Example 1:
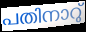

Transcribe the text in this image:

പതിനാറു്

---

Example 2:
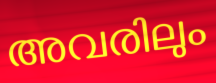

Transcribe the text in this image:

അവരിലും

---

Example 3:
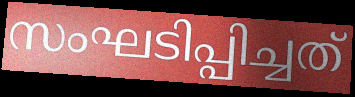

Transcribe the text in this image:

സംഘടിപ്പിച്ചത്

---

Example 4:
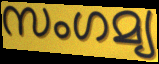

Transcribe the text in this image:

സംഗമ്യ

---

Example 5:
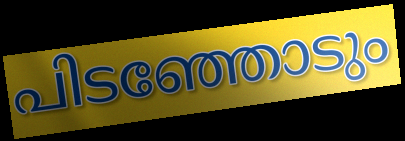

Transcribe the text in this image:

പിടഞ്ഞോടും